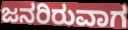
ಜನರಿರುವಾಗ